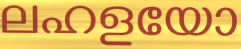
ലഹളയോ